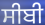
ਸੀਬੀ